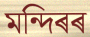
মন্দিৰৰ